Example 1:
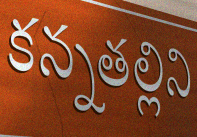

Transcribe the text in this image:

కన్నతల్లిని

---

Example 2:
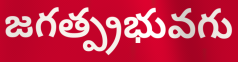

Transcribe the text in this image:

జగత్ప్రభువగు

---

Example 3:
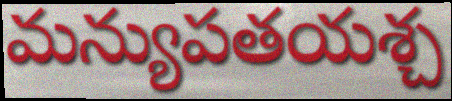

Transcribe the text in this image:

మన్యుపతయశ్చ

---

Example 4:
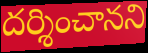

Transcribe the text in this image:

దర్శించానని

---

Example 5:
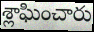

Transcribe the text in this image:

శ్లాఘించారు